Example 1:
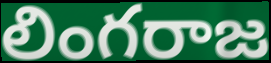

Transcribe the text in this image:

లింగరాజ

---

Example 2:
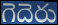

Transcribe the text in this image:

గెదెరు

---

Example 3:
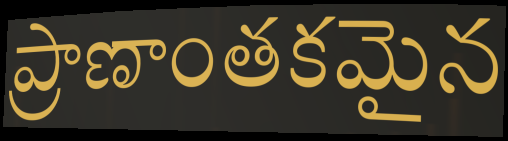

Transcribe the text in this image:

ప్రాణాంతకమైన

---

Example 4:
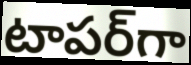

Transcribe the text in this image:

టాపర్‌గా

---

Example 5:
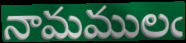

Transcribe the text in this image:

నామములఁ